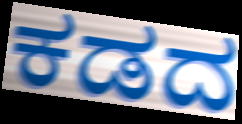
ಕಡದ